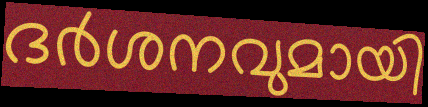
ദർശനവുമായി